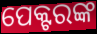
ପେକ୍ଟରଙ୍କ